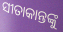
ସୀତାକାନ୍ତଙ୍କୁ